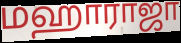
மஹாராஜா